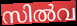
സിൽവ